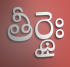
తీర్థైః